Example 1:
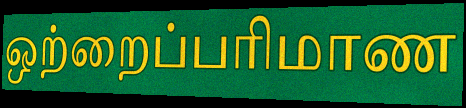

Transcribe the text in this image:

ஒற்றைப்பரிமாண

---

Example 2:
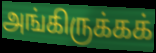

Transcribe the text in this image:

அங்கிருக்கக்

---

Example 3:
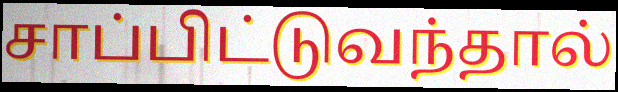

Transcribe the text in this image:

சாப்பிட்டுவந்தால்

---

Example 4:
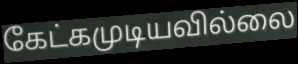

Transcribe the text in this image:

கேட்கமுடியவில்லை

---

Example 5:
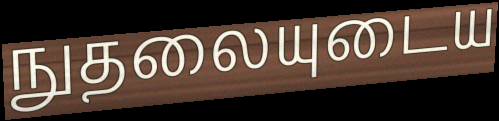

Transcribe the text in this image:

நுதலையுடைய